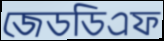
জেডডিএফ